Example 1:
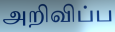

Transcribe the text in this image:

அறிவிப்ப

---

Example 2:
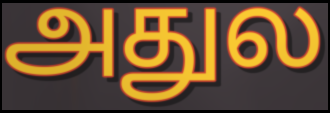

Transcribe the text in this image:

அதுல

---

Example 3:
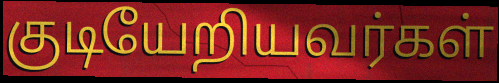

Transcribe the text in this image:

குடியேறியவர்கள்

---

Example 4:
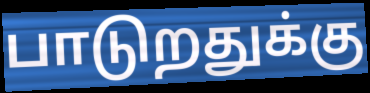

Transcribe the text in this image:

பாடுறதுக்கு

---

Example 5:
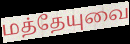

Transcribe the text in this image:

மத்தேயுவை